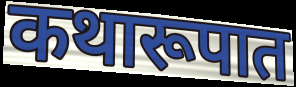
कथारूपात